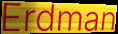
Erdman